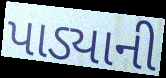
પાડ્યાની